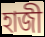
হাজী